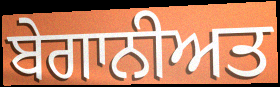
ਬੇਗਾਨੀਅਤ